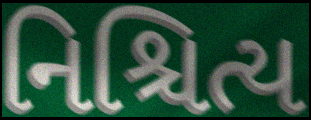
નિશ્ચિત્ય